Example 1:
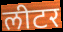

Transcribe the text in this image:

लीटर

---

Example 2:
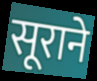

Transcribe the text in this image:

सूराने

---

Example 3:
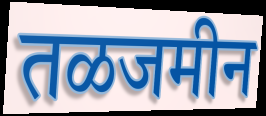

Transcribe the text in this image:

तळजमीन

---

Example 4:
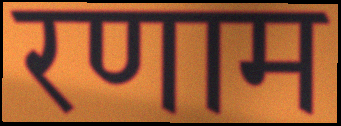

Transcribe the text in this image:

रणाम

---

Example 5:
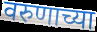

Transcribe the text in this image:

वरुणाच्या